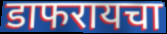
डाफरायचा